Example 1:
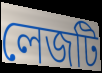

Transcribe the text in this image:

লেজটি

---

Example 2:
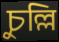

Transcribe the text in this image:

চুল্লি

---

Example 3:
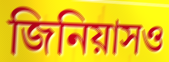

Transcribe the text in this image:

জিনিয়াসও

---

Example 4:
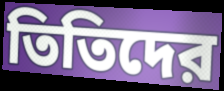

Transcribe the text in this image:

তিতিদের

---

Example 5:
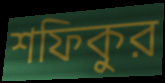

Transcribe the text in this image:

শফিকুর